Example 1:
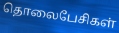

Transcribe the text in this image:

தொலைபேசிகள்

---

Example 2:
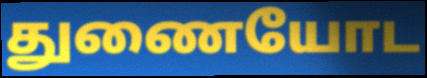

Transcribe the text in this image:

துணையோட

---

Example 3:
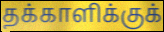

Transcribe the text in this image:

தக்காளிக்குக்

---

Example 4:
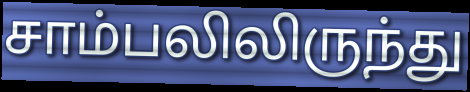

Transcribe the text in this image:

சாம்பலிலிருந்து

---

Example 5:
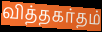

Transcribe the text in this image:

வித்தகர்தம்